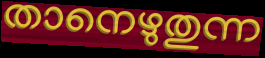
താനെഴുതുന്ന